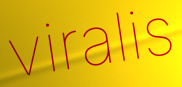
viralis